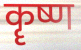
कॄष्ण